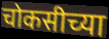
चोकसीच्या